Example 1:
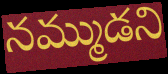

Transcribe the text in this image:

నమ్ముడని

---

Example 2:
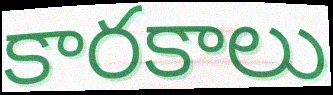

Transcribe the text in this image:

కారకాలు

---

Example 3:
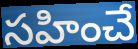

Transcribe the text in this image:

సహించే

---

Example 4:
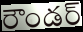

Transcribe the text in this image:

రౌండర్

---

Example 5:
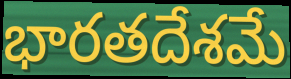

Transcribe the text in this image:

భారతదేశమే